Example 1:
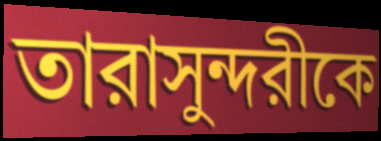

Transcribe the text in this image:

তারাসুন্দরীকে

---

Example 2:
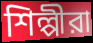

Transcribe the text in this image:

শিল্পীরা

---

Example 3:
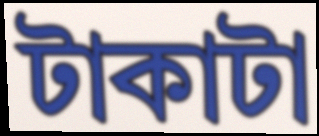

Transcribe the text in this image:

টাকাটা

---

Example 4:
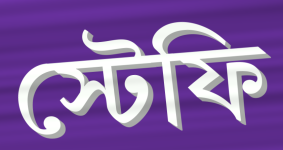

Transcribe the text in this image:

স্টেফি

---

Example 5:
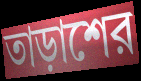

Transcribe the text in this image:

তাড়াশের